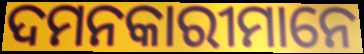
ଦମନକାରୀମାନେ